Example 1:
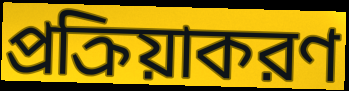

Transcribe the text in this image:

প্রক্রিয়াকরণ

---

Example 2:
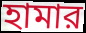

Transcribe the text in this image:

হামার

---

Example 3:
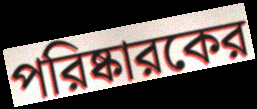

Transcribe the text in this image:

পরিষ্কারকের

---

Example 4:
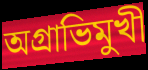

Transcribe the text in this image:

অগ্রাভিমুখী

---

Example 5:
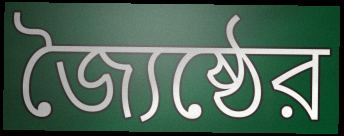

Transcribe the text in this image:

জ্যৈষ্ঠের